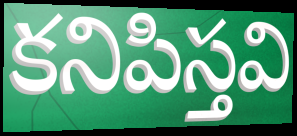
కనిపిస్తవి